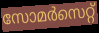
സോമർസെറ്റ്